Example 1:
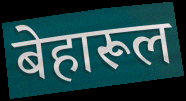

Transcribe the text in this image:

बेहारूल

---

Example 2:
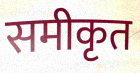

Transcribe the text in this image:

समीकृत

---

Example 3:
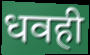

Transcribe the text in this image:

धवही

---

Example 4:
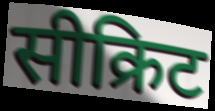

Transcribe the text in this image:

सीक्रिट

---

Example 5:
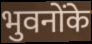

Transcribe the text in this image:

भुवनोंके